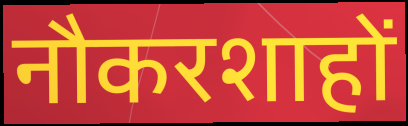
नौकरशाहों